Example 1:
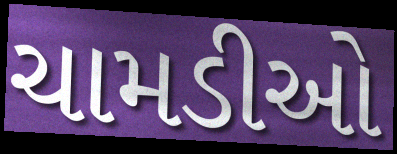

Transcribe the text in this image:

ચામડીઓ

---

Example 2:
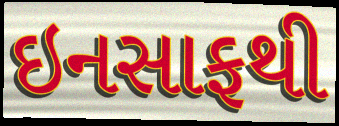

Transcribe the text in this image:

ઇનસાફથી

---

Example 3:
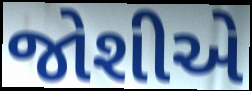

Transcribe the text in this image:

જોશીએ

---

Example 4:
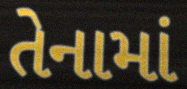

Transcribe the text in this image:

તેનામાં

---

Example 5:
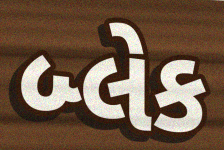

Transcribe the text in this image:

બ્લેક